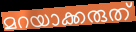
മറയാക്കരുത്